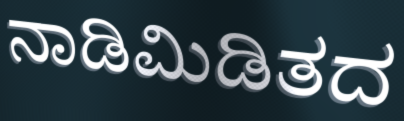
ನಾಡಿಮಿಡಿತದ